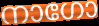
നാഗോ